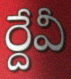
ర్దేవీ